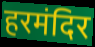
हरमंदिर